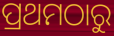
ପ୍ରଥମଠାରୁ